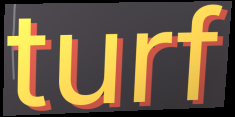
turf